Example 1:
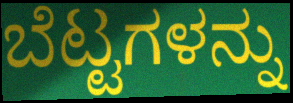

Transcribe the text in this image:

ಬೆಟ್ಟಗಳನ್ನು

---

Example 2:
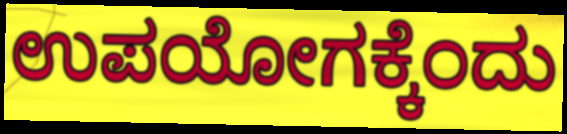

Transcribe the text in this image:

ಉಪಯೋಗಕ್ಕೆಂದು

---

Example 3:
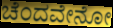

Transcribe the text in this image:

ಚೆಂದವೇನೋ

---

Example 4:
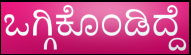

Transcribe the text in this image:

ಒಗ್ಗಿಕೊಂಡಿದ್ದೆ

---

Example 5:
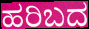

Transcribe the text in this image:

ಹರಿಬದ